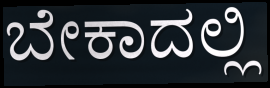
ಬೇಕಾದಲ್ಲಿ